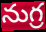
నుగ్ర